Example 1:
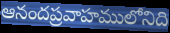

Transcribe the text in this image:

ఆనందప్రవాహములోనిది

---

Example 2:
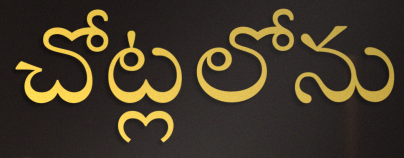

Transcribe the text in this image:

చోట్లలోను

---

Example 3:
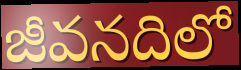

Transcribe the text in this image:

జీవనదిలో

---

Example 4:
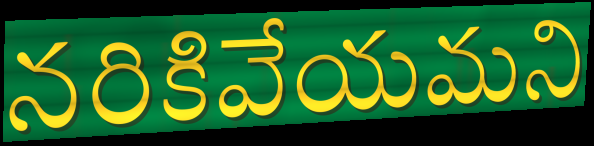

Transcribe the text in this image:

నరికివేయమని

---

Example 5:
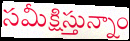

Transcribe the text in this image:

సమీక్షిస్తున్నాం